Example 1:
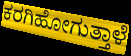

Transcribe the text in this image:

ಕರಗಿಹೋಗುತ್ತಾಳೆ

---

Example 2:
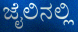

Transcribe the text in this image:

ಜೈಲಿನಲ್ಲಿ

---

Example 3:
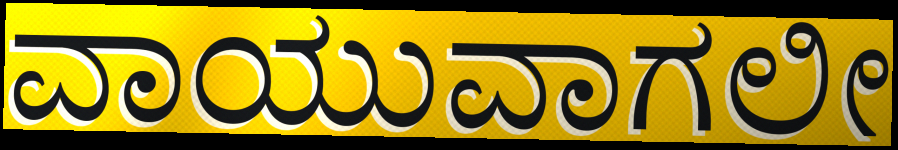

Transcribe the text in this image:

ವಾಯುವಾಗಲೀ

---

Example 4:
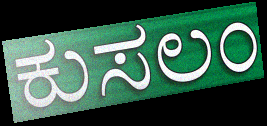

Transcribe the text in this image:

ಕುಸಲಂ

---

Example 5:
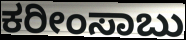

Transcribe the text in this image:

ಕರೀಂಸಾಬು